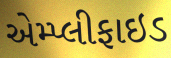
એમ્પ્લીફાઇડ